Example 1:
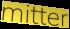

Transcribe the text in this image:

mitter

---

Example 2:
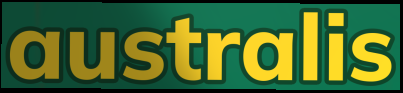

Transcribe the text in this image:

australis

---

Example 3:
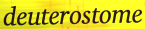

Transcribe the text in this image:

deuterostome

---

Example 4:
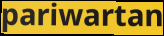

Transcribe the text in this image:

pariwartan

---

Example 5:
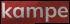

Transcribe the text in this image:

kampe